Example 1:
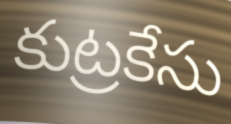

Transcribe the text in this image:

కుట్రకేసు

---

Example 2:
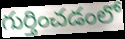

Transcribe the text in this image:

గుర్తించడంలో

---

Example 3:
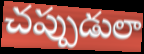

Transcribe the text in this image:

చప్పుడులా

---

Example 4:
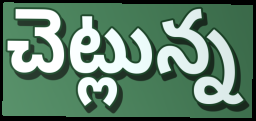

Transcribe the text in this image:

చెట్లున్న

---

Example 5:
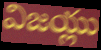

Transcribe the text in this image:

విజయ్లు